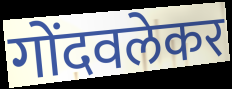
गोंदवलेकर